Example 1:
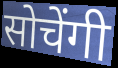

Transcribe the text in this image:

सोचेंगी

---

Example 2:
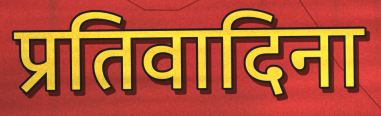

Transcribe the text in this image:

प्रतिवादिना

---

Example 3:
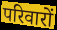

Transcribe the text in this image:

परिवारों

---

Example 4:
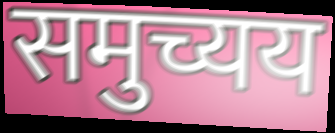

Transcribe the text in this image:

समुच्यय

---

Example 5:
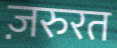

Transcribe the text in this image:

ज़रुरत